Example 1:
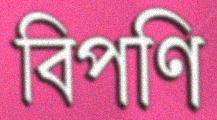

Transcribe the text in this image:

বিপণি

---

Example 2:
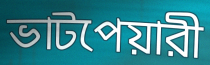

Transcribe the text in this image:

ভাটপেয়ারী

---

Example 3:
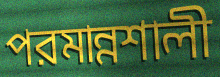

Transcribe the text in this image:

পরমান্নশালী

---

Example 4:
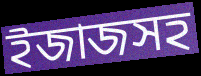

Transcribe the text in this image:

ইজাজসহ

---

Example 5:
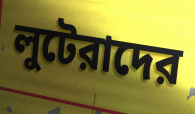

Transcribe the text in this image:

লুটেরাদের